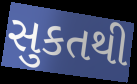
સુકતથી